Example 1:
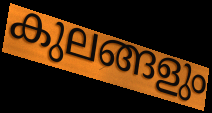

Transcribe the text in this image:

കുലങ്ങളും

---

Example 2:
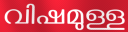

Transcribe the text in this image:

വിഷമുള്ള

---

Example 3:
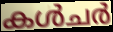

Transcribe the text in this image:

കൾചർ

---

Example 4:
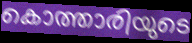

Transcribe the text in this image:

കൊത്താരിയുടെ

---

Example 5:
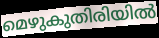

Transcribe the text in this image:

മെഴുകുതിരിയിൽ